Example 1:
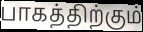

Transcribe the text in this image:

பாகத்திற்கும்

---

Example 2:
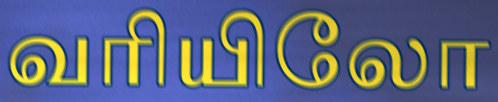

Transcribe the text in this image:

வரியிலோ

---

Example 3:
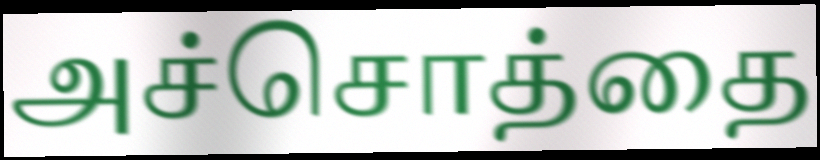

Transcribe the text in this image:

அச்சொத்தை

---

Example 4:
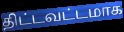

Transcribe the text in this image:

திட்டவட்டமாக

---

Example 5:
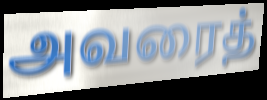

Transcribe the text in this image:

அவரைத்